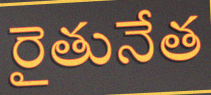
రైతునేత